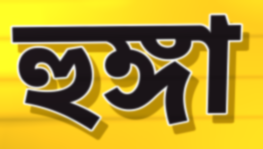
হুঙ্গা